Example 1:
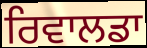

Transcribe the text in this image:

ਰਿਵਾਲਡਾ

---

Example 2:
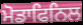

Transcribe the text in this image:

ਮੋਡਾਫਿਨਿਲ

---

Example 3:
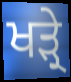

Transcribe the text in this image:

ਖੜ੍ਰੇ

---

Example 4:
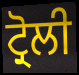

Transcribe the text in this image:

ਟ੍ਰੋਲੀ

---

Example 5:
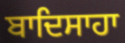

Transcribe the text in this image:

ਬਾਦਿਸਾਹਾ